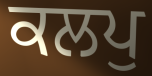
ਕਲਪੁ